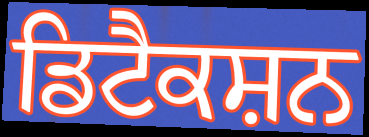
ਡਿਟੈਕਸ਼ਨ